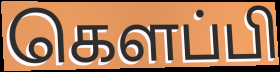
கெளப்பி